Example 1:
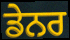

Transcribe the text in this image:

ਡੇਨਰ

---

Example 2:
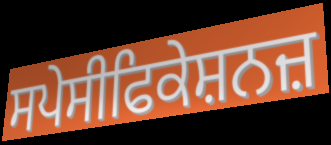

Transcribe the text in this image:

ਸਪੇਸੀਫਿਕੇਸ਼ਨਜ਼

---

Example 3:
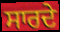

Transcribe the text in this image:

ਸਾਰਦੇ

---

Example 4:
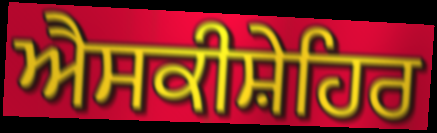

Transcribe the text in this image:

ਐਸਕੀਸ਼ੇਹਿਰ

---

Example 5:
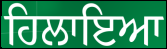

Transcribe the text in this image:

ਹਿਲਾਇਆ